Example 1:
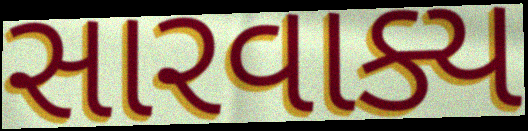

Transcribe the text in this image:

સારવાક્ય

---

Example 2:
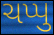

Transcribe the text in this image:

ચપ્પુ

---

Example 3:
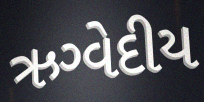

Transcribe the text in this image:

ઋગ્વેદીય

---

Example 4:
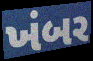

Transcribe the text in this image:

ખંબર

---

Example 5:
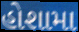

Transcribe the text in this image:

હોશામા